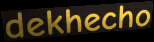
dekhecho